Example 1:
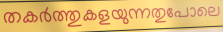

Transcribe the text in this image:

തകർത്തുകളയുന്നതുപോലെ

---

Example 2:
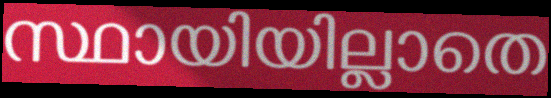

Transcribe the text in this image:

സ്ഥായിയില്ലാതെ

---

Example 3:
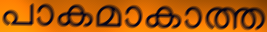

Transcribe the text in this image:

പാകമാകാത്ത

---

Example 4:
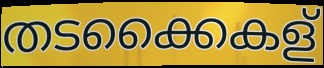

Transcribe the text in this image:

തടക്കൈകള്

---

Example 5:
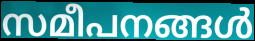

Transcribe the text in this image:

സമീപനങ്ങൾ